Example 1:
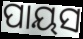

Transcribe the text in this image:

ପାୟସ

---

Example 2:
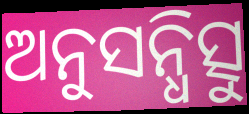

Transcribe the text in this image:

ଅନୁସନ୍ଧିତ୍ସୁ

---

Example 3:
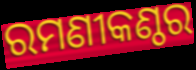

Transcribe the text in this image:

ରମଣୀକଣ୍ଠର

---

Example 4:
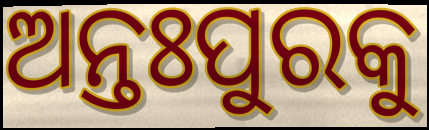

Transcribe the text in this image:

ଅନ୍ତଃପୁରକୁ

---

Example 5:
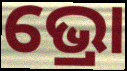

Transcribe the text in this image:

ଭ୍ରୋ